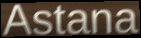
Astana